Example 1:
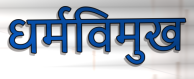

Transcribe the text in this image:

धर्मविमुख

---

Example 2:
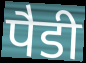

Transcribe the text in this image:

पैडी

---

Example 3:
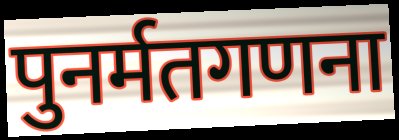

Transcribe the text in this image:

पुनर्मतगणना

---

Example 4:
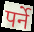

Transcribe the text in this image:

पर्ने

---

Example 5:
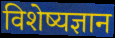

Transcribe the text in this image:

विशेष्यज्ञान